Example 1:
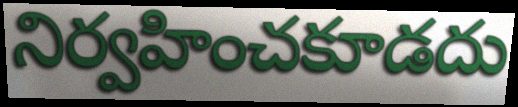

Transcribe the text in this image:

నిర్వహించకూడదు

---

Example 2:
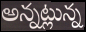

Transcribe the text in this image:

అన్నట్లున్న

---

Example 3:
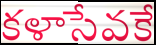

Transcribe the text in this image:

కళాసేవకే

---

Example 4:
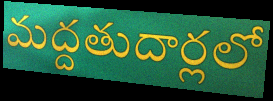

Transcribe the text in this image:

మద్దతుదార్లలో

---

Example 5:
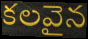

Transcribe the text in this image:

కలవైన